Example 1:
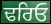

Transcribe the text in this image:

ਢਰਿਓ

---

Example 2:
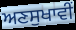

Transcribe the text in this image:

ਅਣਸੁਖਾਵੀਂ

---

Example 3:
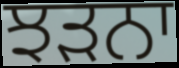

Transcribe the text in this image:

ਝੜਨਾ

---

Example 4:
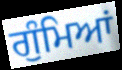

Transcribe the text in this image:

ਗੁੰਮਿਆਂ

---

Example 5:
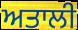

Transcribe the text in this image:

ਅਤਾਲੀ